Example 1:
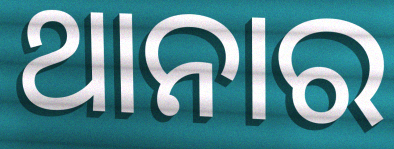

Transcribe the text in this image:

ଥାନାର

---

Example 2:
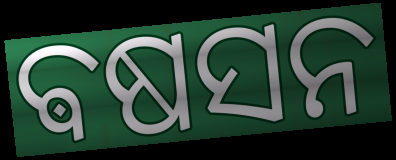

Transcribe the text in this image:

ଵଷସନ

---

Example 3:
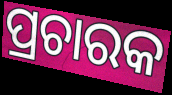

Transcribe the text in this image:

ପ୍ରଚାରକ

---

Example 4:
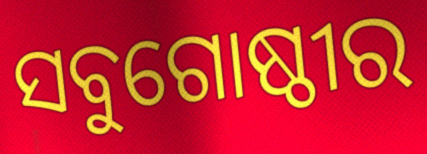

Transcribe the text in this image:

ସବୁଗୋଷ୍ଠୀର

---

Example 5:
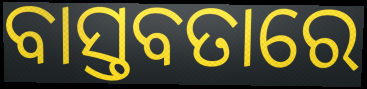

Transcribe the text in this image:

ବାସ୍ତବତାରେ